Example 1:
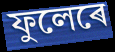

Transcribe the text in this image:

ফুলেৰে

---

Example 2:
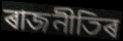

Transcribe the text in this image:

ৰাজনীতিৰ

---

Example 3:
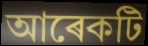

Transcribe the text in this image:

আৰেকটি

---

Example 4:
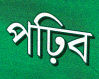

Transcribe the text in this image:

পঢ়িব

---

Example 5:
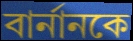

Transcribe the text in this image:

বাৰ্নানকে